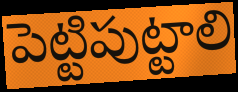
పెట్టిపుట్టాలి